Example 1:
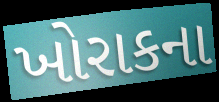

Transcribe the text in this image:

ખોરાકના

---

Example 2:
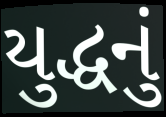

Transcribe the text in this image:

યુદ્ધનું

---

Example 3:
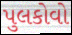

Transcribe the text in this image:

પુલકોવો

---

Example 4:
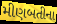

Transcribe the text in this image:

મીણબતીના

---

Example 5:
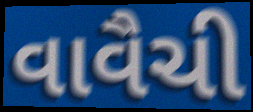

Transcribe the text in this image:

વાવૈચી